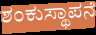
ಶಂಕುಸ್ಥಾಪನೆ